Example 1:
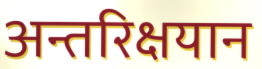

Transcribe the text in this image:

अन्तरिक्षयान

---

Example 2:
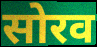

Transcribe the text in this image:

सोरव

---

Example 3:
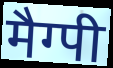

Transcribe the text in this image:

मैग्पी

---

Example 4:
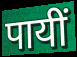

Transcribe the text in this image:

पायीं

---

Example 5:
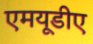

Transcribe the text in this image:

एमयूडीए